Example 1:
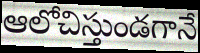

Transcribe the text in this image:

ఆలోచిస్తుండగానే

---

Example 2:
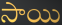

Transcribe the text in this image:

సాయి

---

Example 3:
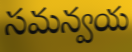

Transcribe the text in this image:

సమన్వయ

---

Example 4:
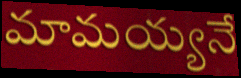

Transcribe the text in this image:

మామయ్యనే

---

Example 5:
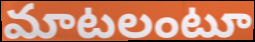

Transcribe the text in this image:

మాటలంటూ